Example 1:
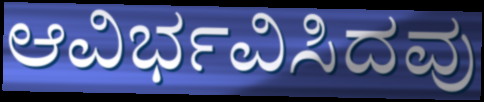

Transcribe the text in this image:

ಆವಿರ್ಭವಿಸಿದವು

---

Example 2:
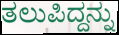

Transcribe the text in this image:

ತಲುಪಿದ್ದನ್ನು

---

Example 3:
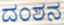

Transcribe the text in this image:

ದಂಶನ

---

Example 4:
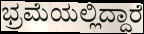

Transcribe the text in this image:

ಭ್ರಮೆಯಲ್ಲಿದ್ದಾರೆ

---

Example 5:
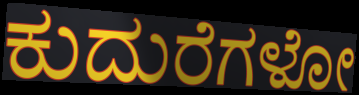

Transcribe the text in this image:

ಕುದುರೆಗಳೋ